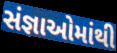
સંજ્ઞાઓમાંથી